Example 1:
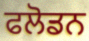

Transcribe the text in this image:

ਫਲੋਡਨ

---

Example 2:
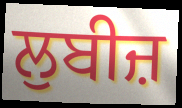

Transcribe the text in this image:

ਲੁਬੀਜ਼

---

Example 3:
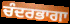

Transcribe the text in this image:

ਚੰਦਰਭਾਗਾ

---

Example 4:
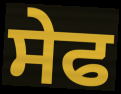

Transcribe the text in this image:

ਸੇਫ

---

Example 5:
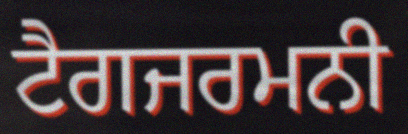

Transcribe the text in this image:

ਟੈਗਜਰਮਨੀ